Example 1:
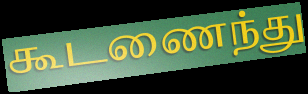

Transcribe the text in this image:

கூடணைந்து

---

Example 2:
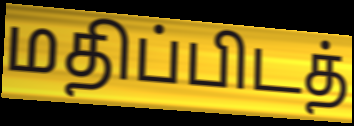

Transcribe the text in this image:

மதிப்பிடத்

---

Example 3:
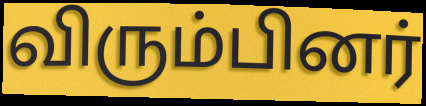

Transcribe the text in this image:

விரும்பினர்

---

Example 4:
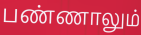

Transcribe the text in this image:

பண்ணாலும்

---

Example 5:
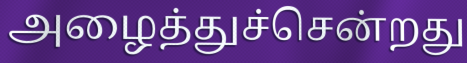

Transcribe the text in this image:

அழைத்துச்சென்றது